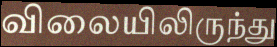
விலையிலிருந்து